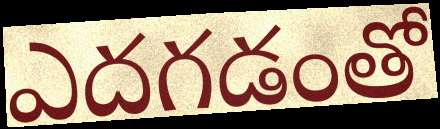
ఎదగడంతో